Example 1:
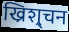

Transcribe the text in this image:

ख्रिश्र्चन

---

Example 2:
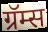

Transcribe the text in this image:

ग्रॅम्स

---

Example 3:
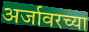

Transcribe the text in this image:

अर्जावरच्या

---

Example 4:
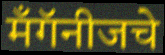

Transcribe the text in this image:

मँगॅनीजचे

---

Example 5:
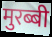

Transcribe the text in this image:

मुरब्बी